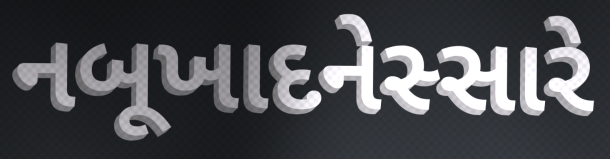
નબૂખાદનેસ્સારે